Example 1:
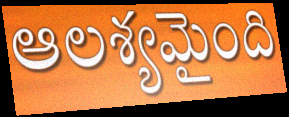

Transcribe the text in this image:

ఆలశ్యమైంది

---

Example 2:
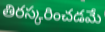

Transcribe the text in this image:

తిరస్కరించడమే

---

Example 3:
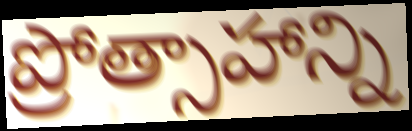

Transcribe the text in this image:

ప్రోత్సాహాన్ని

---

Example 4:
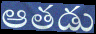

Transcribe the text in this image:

ఆతడు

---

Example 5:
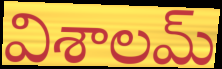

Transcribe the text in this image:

విశాలమ్